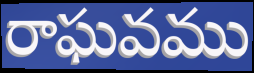
రాఘవము